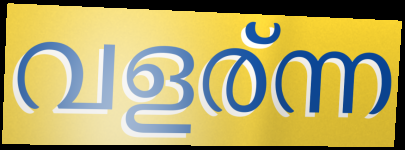
വളര്ന്ന